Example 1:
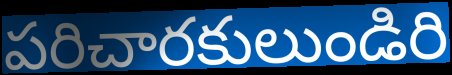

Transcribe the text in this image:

పరిచారకులుండిరి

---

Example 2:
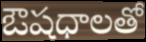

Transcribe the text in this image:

ఔషధాలతో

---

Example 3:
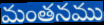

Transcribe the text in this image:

మంతనము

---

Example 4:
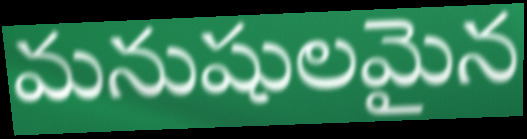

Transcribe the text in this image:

మనుషులమైన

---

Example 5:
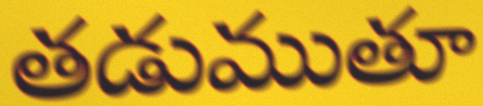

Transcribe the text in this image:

తడుముతూ